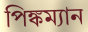
পিঙ্কম্যান